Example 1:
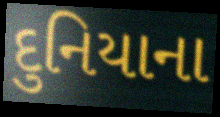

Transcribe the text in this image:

દુનિયાના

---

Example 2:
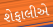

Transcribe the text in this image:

શેફાલીએ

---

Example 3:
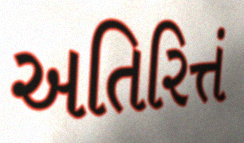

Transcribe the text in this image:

અતિરિત્તં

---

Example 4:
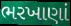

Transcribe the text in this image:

ભરખાણાં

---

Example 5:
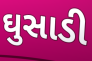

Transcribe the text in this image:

ઘુસાડી